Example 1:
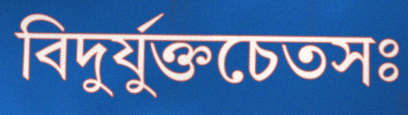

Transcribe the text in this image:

বিদুর্যুক্তচেতসঃ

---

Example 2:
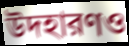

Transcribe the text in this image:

উদহারণও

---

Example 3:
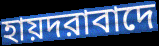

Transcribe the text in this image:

হায়দরাবাদে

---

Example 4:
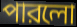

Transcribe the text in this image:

পারলো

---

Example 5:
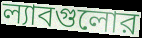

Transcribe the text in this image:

ল্যাবগুলোর